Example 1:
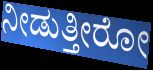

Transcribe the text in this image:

ನೀಡುತ್ತೀರೋ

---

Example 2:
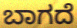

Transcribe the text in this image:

ಬಾಗದೆ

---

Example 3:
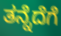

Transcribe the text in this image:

ತನ್ನೆದೆಗೆ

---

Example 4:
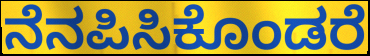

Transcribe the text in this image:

ನೆನಪಿಸಿಕೊಂಡರೆ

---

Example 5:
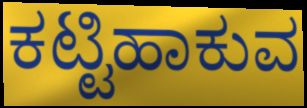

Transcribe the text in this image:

ಕಟ್ಟಿಹಾಕುವ